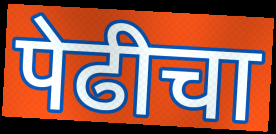
पेढीचा